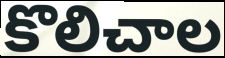
కొలిచాల